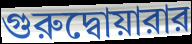
গুরুদ্বোয়ারার